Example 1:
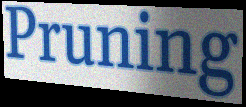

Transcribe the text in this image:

Pruning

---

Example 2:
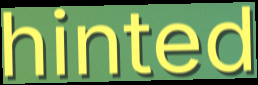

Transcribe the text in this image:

hinted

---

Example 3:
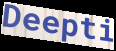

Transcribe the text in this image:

Deepti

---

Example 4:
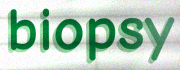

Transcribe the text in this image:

biopsy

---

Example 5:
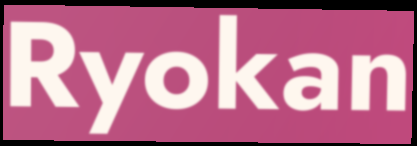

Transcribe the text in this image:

Ryokan